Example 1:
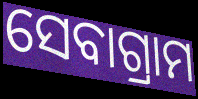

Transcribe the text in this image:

ସେବାଗ୍ରାମ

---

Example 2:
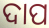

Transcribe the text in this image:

ଦାପ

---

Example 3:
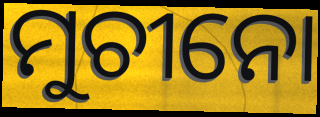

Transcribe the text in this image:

ମୁଚୀନୋ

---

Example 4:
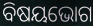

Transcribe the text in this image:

ବିଷୟଭୋଗ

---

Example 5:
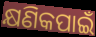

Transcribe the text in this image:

କ୍ଷଣିକପାଇଁ